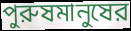
পুরুষমানুষের